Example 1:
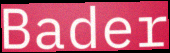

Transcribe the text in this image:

Bader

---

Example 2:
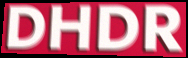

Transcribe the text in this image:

DHDR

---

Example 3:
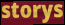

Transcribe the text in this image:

storys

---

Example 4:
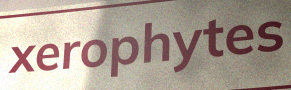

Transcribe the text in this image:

xerophytes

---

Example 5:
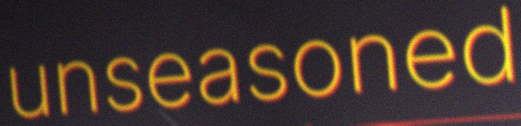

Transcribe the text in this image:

unseasoned